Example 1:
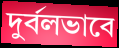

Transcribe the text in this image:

দুর্বলভাবে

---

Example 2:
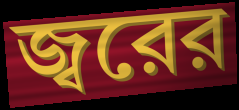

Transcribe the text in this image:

জ্বরের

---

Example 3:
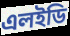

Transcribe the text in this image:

এলইডি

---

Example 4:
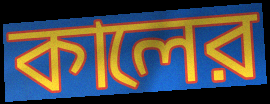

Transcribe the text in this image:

কালের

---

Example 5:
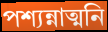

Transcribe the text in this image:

পশ্যন্নাত্মনি